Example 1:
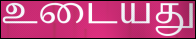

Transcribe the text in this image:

உடையது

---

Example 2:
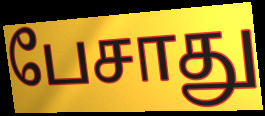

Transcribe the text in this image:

பேசாது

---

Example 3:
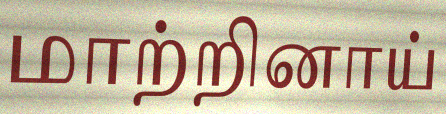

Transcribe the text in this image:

மாற்றினாய்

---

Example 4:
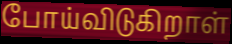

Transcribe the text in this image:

போய்விடுகிறாள்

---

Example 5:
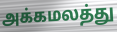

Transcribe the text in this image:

அக்கமலத்து